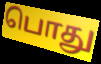
பொது